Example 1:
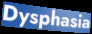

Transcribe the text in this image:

Dysphasia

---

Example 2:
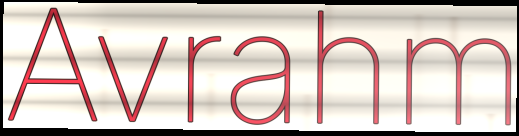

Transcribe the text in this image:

Avrahm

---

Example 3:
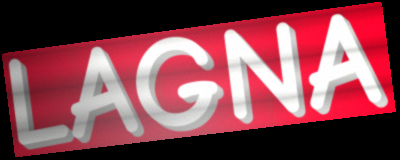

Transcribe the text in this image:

LAGNA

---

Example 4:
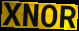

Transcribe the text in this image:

XNOR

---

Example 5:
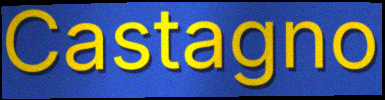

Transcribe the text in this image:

Castagno